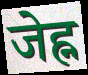
जेह्न